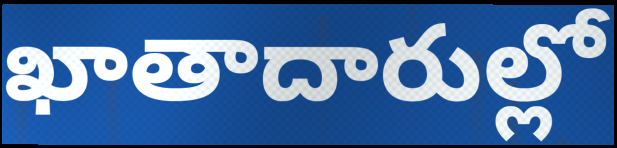
ఖాతాదారుల్లో